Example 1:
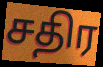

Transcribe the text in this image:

சதிர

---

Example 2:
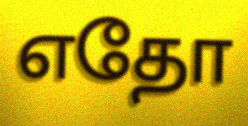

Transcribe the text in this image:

எதோ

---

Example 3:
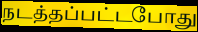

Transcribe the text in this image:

நடத்தப்பட்டபோது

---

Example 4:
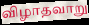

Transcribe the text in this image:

விழாதவாறு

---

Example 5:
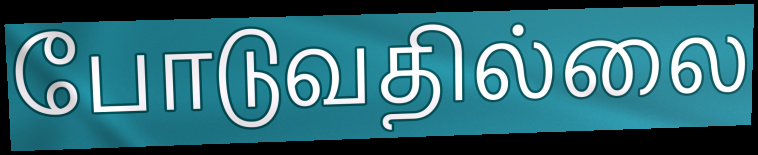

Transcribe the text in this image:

போடுவதில்லை